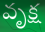
వృక్ష